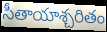
సీతాయాశ్చరితం